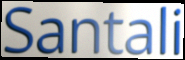
Santali